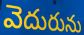
వెదురును